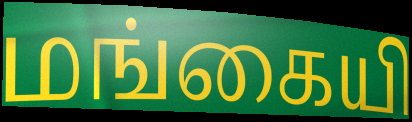
மங்கையி